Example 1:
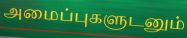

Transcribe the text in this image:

அமைப்புகளுடனும்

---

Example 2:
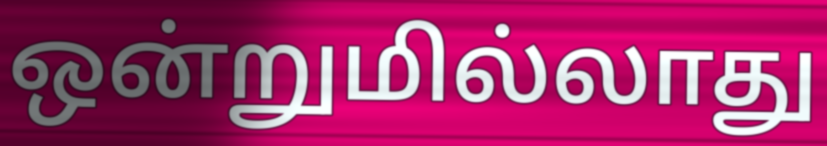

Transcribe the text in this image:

ஒன்றுமில்லாது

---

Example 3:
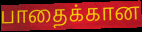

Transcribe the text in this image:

பாதைக்கான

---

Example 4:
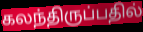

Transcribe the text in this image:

கலந்திருப்பதில்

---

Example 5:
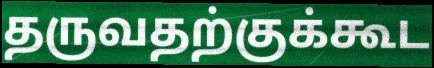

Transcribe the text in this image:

தருவதற்குக்கூட